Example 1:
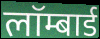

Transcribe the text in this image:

लॉम्बार्ड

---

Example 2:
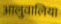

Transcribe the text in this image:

आलुवालिया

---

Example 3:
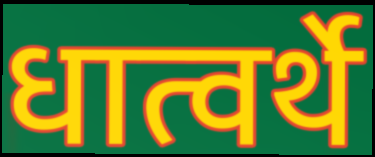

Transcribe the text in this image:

धात्वर्थे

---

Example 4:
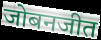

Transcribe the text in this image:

जोबनजीत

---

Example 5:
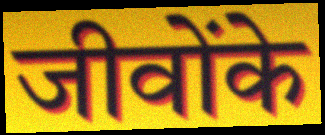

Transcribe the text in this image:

जीवोंके